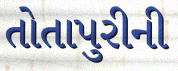
તોતાપુરીની